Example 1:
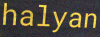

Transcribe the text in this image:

halyan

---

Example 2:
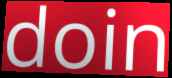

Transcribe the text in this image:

doin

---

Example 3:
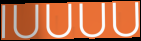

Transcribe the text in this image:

IUUUU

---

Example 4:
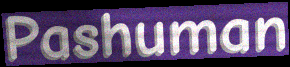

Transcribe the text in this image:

Pashuman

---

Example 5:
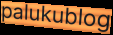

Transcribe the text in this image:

palukublog